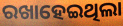
ରଖାହେଇଥିଲା